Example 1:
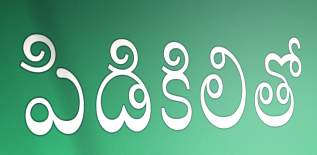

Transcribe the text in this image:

పిడికిలితో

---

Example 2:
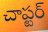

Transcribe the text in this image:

చాప్టర్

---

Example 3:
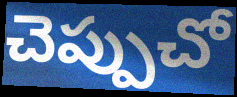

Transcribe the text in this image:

చెప్పుచో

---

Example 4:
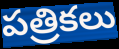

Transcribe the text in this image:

పత్రికలు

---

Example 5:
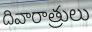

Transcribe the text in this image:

దివారాత్రులు